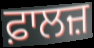
ਫ਼ਾਲਜ਼